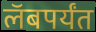
लॅबपर्यंत